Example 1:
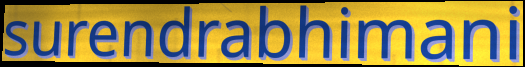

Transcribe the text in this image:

surendrabhimani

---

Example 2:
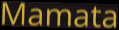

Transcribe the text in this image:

Mamata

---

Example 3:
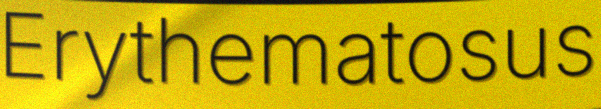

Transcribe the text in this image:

Erythematosus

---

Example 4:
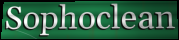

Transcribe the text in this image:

Sophoclean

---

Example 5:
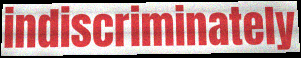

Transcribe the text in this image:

indiscriminately